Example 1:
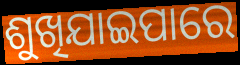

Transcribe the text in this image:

ଶୁଖିଯାଇପାରେ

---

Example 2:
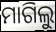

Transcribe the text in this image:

ମାଗିଲୁ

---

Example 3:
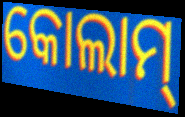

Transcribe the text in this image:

କୋଲାମ୍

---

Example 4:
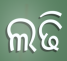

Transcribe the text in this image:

ଲଢି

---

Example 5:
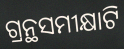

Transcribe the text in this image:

ଗ୍ରନ୍ଥସମୀକ୍ଷାଟି